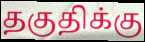
தகுதிக்கு